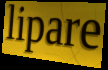
lipare